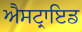
ਐਸਟ੍ਰਾਇਡ